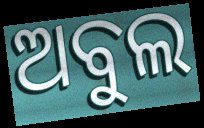
ଅବୁଲ